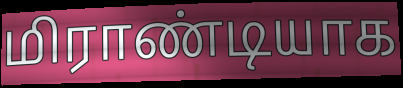
மிராண்டியாக